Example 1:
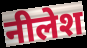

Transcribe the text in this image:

नीलेश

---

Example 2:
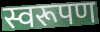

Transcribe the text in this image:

स्वरूपण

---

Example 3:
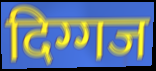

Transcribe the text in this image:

दिग्गज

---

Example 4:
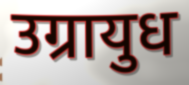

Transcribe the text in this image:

उग्रायुध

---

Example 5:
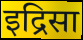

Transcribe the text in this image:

इद्रिसा